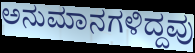
ಅನುಮಾನಗಳಿದ್ದವು